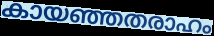
കായഞ്ഞതരാഹം